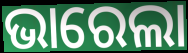
ଭାରେଲା